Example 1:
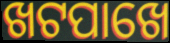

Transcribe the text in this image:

ଖଟପାଖେ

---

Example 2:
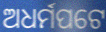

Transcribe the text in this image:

ଅଧର୍ମପଟେ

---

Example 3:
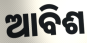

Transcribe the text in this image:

ଆବିଶ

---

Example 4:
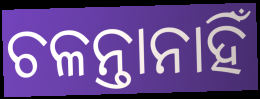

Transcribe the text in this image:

ଚଳନ୍ତାନାହିଁ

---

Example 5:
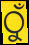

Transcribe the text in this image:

ଠୁଁ